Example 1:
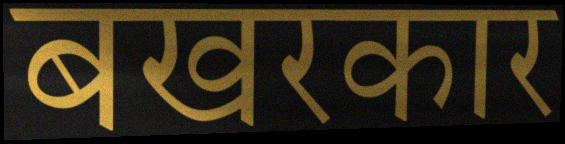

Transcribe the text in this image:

बखरकार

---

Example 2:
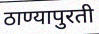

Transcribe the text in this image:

ठाण्यापुरती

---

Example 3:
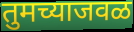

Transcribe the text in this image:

तुमच्याजवळ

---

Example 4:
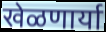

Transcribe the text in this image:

खेळणार्या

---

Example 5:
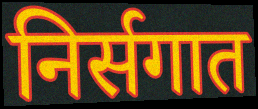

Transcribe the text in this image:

निर्सगात